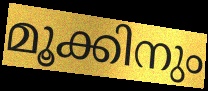
മൂക്കിനും